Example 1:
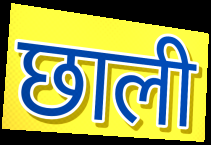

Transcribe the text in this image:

छाली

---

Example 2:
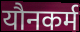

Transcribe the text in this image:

यौनकर्म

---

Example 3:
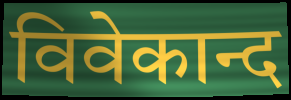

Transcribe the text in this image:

विवेकान्द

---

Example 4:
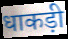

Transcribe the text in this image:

धाकड़ी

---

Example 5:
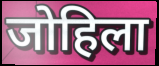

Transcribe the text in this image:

जोहिला